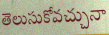
తెలుసుకోవచ్చునా